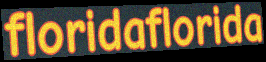
floridaflorida